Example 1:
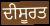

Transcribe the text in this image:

ਦੀਸੂਰਤ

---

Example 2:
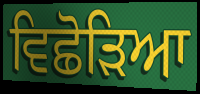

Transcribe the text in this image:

ਵਿਛੋੜਿਆ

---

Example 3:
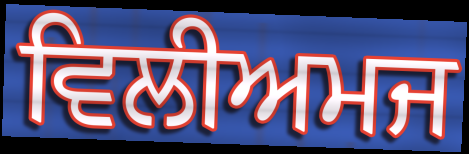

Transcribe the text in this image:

ਵਿਲੀਅਮਜ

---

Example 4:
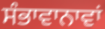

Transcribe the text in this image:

ਸੰਭਾਵਾਨਾਵਾਂ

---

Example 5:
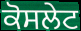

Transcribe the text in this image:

ਕੋਸਲੇਟ